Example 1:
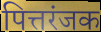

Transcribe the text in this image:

पित्तरंजक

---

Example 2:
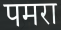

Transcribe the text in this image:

पमरा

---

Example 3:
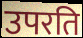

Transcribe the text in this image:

उपरति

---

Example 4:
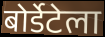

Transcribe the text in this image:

बोर्डेटेला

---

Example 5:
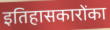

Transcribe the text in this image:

इतिहासकारोंका